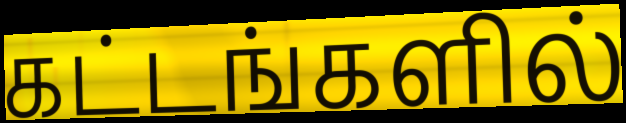
கட்டங்களில்